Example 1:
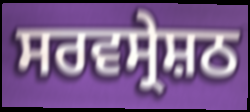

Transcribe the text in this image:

ਸਰਵਸ੍ਰੇਸ਼ਠ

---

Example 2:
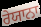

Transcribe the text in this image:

ਰੇਯਾਨਾ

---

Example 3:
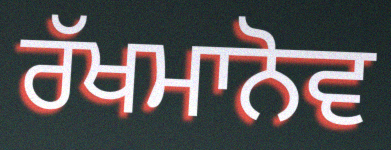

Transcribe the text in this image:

ਰੱਖਮਾਨੋਵ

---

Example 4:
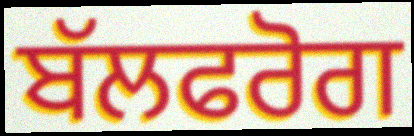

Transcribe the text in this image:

ਬੱਲਫਰੋਗ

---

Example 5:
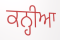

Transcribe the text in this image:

ਕਨ੍ਹੀਆ